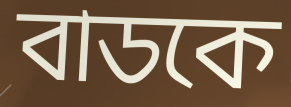
বাডকে